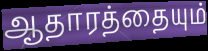
ஆதாரத்தையும்